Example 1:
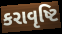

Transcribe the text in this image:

કરાવૃષ્ટિ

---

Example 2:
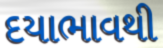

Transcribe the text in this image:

દયાભાવથી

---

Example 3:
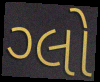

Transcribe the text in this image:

ગ્લો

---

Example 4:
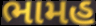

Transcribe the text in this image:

ભામહ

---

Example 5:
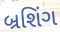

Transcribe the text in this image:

બ્રશિંગ